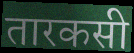
तारकसी